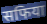
सफिया